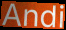
Andi